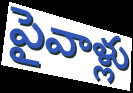
పైవాళ్లు